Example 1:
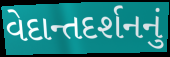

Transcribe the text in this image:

વેદાન્તદર્શનનું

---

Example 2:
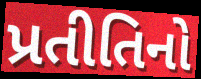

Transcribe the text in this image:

પ્રતીતિનો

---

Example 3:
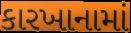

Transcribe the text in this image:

કારખાનામાં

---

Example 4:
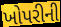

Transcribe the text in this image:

ખોપરીની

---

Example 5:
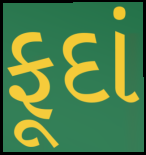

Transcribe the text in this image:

ફૂદાં